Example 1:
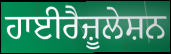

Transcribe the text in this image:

ਹਾਈਰੈਜ਼ੂਲੇਸ਼ਨ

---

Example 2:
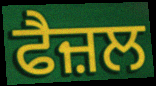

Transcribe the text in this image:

ਫੈਜ਼ਲ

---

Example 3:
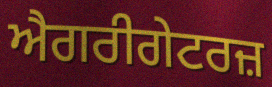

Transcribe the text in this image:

ਐਗਰੀਗੇਟਰਜ਼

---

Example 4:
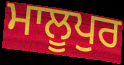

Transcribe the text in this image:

ਮਾਲੂਪੁਰ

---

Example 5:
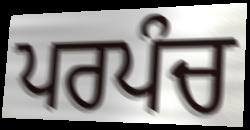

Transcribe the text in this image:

ਪਰਪੰਚ